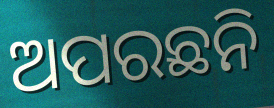
ଅପରଛନି